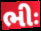
ભીઃ